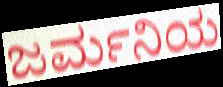
ಜರ್ಮನಿಯ